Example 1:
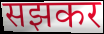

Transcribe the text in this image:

सझकर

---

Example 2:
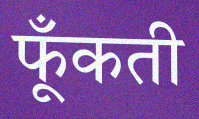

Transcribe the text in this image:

फूँकती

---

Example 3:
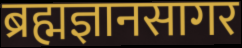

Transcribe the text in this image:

ब्रह्मज्ञानसागर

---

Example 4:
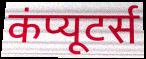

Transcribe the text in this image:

कंप्यूटर्स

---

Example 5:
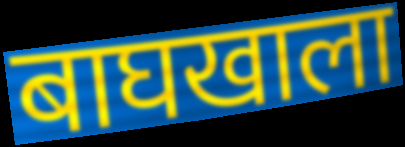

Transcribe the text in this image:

बाघखाला